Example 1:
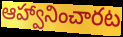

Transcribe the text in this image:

ఆహ్వానించారట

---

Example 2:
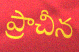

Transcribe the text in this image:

ప్రాచీన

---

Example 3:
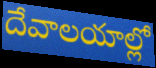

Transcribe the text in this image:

దేవాలయాల్లో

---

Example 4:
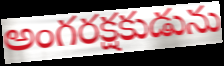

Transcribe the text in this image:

అంగరక్షకుడును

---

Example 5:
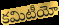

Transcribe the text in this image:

కమిటీయో